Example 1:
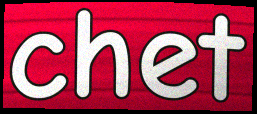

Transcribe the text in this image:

chet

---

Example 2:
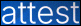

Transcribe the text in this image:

attest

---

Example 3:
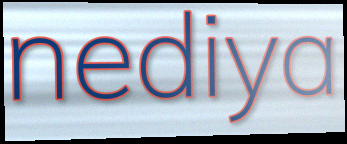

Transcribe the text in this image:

nediya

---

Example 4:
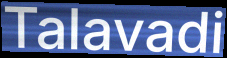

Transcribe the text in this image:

Talavadi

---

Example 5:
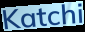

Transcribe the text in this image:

Katchi